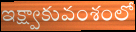
ఇక్ష్వాకువంశంలో